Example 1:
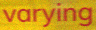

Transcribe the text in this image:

varying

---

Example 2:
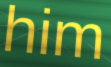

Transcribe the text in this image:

him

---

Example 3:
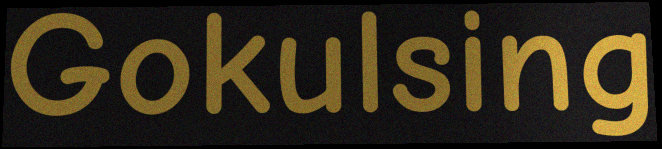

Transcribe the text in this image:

Gokulsing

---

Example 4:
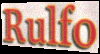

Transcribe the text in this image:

Rulfo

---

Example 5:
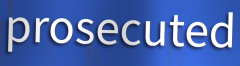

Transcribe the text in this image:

prosecuted